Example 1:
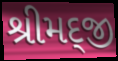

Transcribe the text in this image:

શ્રીમદ્જી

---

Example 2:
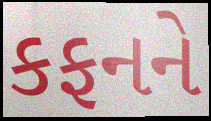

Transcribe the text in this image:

કફનને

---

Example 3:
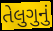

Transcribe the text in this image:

તેલુગુનું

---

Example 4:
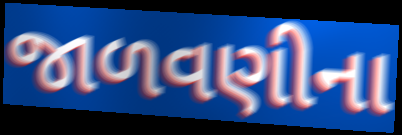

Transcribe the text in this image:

જાળવણીના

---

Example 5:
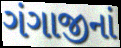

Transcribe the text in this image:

ગંગાજીનાં